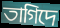
তাগিদে